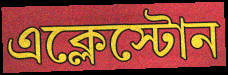
এক্লেস্টোন